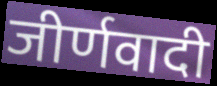
जीर्णवादी